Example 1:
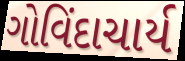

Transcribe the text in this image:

ગોવિંદાચાર્ય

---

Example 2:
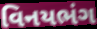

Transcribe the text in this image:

વિનયભંગ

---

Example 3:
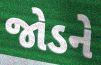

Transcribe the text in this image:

જોડને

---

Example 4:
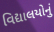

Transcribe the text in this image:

વિદ્યાલયોનું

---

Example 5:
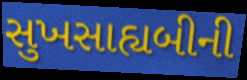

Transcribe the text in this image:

સુખસાહ્યબીની